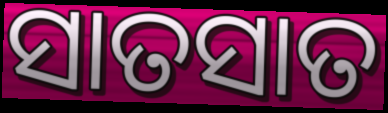
ସାତସାତ